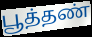
பூத்தண்